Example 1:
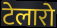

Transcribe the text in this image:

टेलारो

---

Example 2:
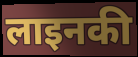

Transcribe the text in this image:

लाइनकी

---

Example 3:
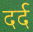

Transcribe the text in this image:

दर्द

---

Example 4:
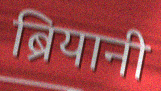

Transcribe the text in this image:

ब्रियानी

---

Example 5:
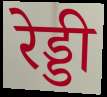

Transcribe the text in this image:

रेड्डी